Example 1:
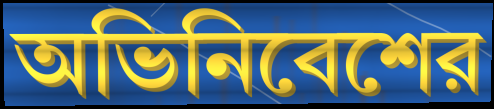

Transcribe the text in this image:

অভিনিবেশের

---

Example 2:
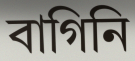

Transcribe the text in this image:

বাগিনি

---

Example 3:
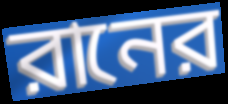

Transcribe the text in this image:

রানের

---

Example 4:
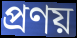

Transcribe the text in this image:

প্রণয়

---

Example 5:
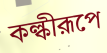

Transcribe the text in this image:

কল্কীরূপে